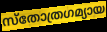
സ്തോത്രഗമ്യായ